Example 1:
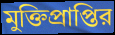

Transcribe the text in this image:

মুক্তিপ্রাপ্তির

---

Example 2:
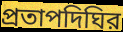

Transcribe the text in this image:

প্রতাপদিঘির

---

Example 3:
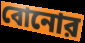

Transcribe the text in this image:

বোনোর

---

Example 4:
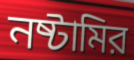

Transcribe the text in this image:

নষ্টামির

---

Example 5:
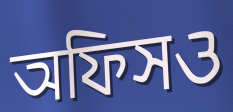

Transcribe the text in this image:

অফিসও